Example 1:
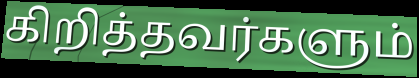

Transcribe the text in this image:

கிறித்தவர்களும்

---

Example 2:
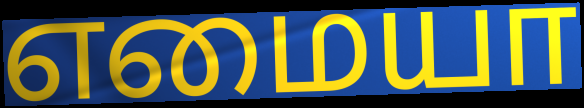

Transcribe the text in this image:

எமையா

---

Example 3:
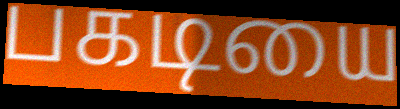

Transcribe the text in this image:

பகடியை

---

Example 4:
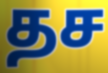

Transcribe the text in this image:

தச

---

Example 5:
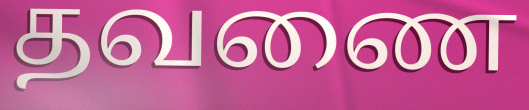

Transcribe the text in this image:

தவணை